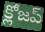
క్లోజప్